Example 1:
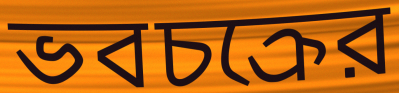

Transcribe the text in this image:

ভবচক্রের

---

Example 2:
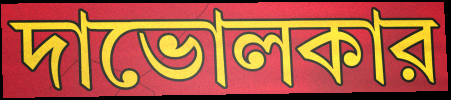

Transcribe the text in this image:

দাভোলকার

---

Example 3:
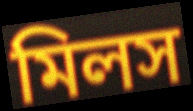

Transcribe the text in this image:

মিলস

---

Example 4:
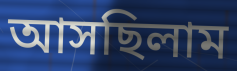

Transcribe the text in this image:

আসছিলাম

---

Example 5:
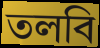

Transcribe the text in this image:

তলবি